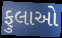
ફુલાઓ